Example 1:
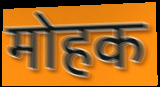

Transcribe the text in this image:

मोहक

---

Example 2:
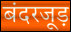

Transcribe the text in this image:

बंदरजूड़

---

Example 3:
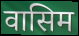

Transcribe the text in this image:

वासिम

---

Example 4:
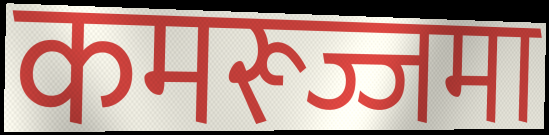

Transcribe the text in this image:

कमरूज्जमा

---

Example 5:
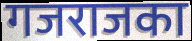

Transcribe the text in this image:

गजराजका